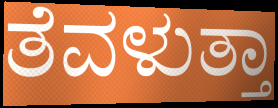
ತೆವಳುತ್ತಾ